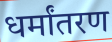
धर्मांतरण